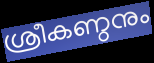
ശ്രീകണ്ഠനും